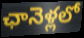
ఛానెళ్లలో